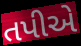
તપીએ